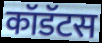
कॉडॅटस